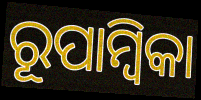
ରୂପାମ୍ବିକା